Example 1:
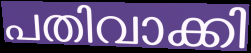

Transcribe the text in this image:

പതിവാക്കി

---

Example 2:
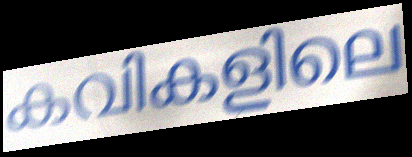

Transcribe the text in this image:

കവികളിലെ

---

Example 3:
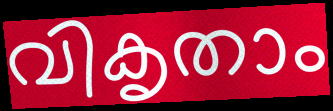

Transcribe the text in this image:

വികൃതാം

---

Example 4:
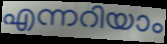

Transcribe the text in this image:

എന്നറിയാം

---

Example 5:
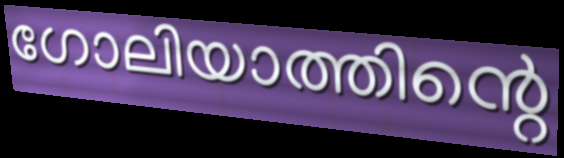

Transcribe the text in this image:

ഗോലിയാത്തിന്റെ